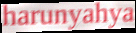
harunyahya